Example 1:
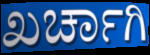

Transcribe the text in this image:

ಖರ್ಚಾಗಿ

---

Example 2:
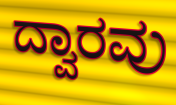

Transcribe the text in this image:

ದ್ವಾರವು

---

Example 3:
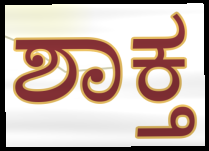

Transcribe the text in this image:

ಶಾಕ್ತ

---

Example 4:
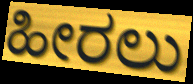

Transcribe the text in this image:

ಹೀರಲು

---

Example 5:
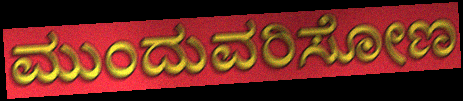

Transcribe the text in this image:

ಮುಂದುವರಿಸೋಣ